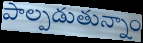
పాల్పడుతున్నాం